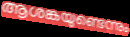
ആശങ്കയുണ്ടെന്നും